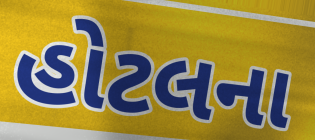
હોટલના